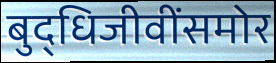
बुद्धिजीवींसमोर